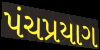
પંચપ્રયાગ